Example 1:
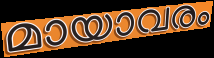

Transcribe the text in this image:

മായാവരം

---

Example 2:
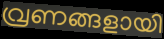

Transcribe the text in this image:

വ്രണങ്ങളായി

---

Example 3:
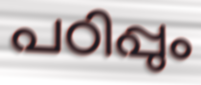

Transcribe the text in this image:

പഠിപ്പും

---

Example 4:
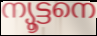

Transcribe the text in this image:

ന്യൂട്ടനെ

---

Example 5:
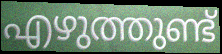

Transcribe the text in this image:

എഴുത്തുണ്ട്